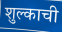
शुल्काची